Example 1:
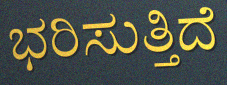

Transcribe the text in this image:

ಭರಿಸುತ್ತಿದೆ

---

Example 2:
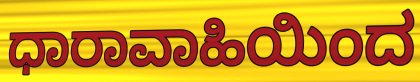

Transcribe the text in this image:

ಧಾರಾವಾಹಿಯಿಂದ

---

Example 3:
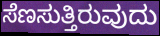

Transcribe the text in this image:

ಸೆಣಸುತ್ತಿರುವುದು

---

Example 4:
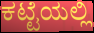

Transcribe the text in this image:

ಕಟ್ಟೆಯಲ್ಲಿ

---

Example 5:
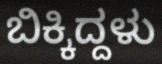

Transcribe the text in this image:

ಬಿಕ್ಕಿದ್ದಳು